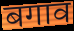
बगाव